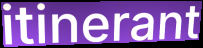
itinerant